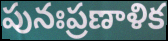
పునఃప్రణాళిక